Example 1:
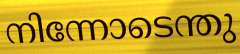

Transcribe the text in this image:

നിന്നോടെന്തു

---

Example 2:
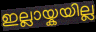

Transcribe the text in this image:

ഇല്ലായ്കയില്ല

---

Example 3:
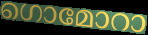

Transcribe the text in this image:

ഗൊമോറാ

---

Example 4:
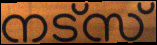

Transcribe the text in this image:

നട്സ്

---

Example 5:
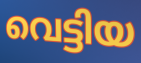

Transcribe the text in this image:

വെട്ടിയ